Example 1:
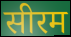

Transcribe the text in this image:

सीरम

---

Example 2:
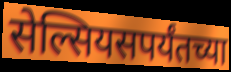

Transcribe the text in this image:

सेल्सियसपर्यंतच्या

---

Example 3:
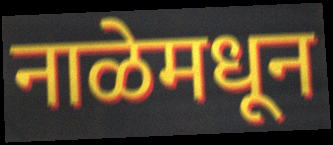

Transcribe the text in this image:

नाळेमधून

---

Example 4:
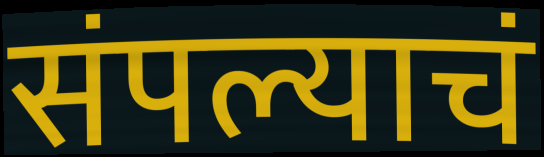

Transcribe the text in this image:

संपल्याचं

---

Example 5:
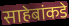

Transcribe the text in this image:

साहेबांकडे